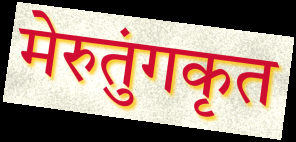
मेरुतुंगकृत